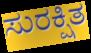
ಸುರಕ್ಷಿತ